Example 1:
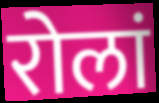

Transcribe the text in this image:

रोलां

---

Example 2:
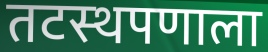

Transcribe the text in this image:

तटस्थपणाला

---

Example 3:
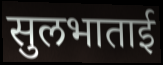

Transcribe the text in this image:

सुलभाताई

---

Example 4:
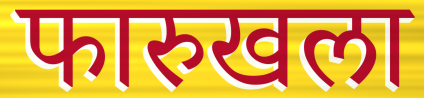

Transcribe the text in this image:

फारुखला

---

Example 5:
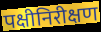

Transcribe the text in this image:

पक्षीनिरीक्षण